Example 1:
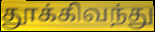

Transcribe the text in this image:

தூக்கிவந்து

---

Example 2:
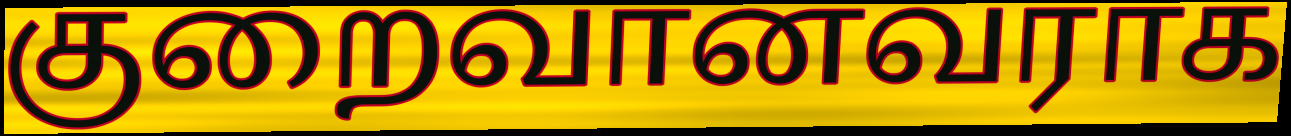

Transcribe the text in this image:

குறைவானவராக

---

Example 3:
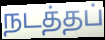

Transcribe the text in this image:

நடத்தப்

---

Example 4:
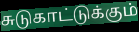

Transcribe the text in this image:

சுடுகாட்டுக்கும்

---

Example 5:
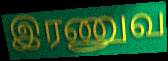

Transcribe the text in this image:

இரணுவ